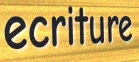
ecriture